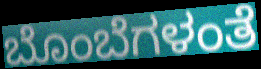
ಬೊಂಬೆಗಳಂತೆ